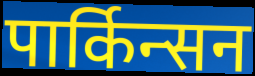
पार्किन्सन